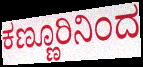
ಕಣ್ಣೂರಿನಿಂದ